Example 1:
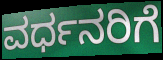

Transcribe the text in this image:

ವರ್ಧನರಿಗೆ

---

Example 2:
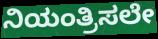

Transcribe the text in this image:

ನಿಯಂತ್ರಿಸಲೇ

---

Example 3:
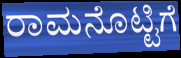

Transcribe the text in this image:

ರಾಮನೊಟ್ಟಿಗೆ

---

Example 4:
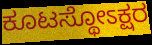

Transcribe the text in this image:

ಕೂಟಸ್ಥೋಽಕ್ಷರ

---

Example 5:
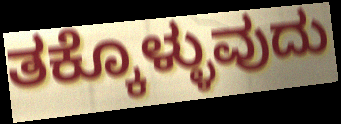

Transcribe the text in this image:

ತಕ್ಕೊಳ್ಳುವುದು